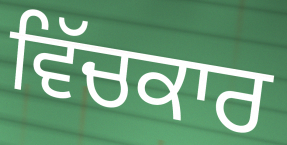
ਵਿੱਚਕਾਰ